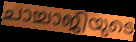
ചാച്ചാജിയുടെ